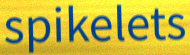
spikelets